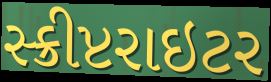
સ્ક્રીપ્ટરાઇટર